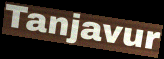
Tanjavur